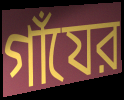
গাঁযের